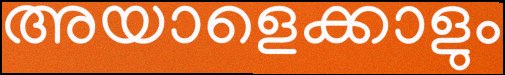
അയാളെക്കാളും